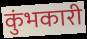
कुंभकारी